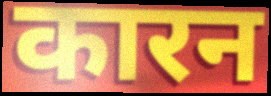
कारन